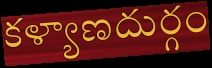
కళ్యాణదుర్గం